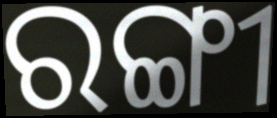
ରଙ୍ଗୀ